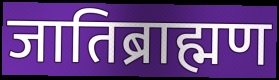
जातिब्राह्मण